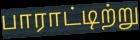
பாராட்டிற்று